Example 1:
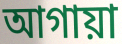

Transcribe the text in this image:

আগায়া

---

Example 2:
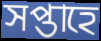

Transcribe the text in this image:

সপ্তাহে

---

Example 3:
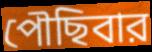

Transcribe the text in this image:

পৌছিবার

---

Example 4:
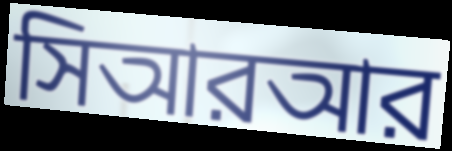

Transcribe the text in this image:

সিআরআর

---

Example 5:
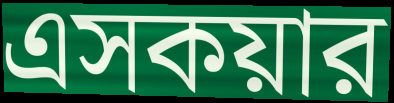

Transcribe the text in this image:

এসকয়ার